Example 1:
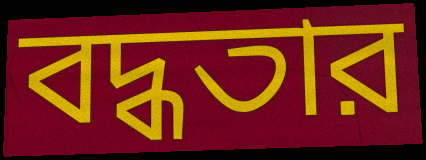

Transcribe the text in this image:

বদ্ধতার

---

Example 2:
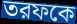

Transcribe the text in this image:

তরফকে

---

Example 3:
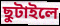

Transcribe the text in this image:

ছুটাইলে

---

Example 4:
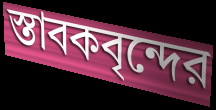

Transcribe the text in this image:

স্তাবকবৃন্দের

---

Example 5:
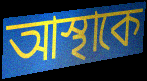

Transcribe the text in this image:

আস্থাকে